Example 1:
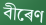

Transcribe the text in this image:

বীৰেণ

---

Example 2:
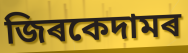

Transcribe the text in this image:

জিৰকেদামৰ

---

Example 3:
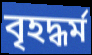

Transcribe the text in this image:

বৃহদ্ধৰ্ম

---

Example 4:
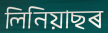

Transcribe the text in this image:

লিনিয়াছৰ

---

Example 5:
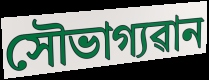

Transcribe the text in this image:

সৌভাগ্যৱান